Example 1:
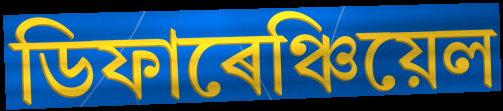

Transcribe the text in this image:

ডিফাৰেঞ্চিয়েল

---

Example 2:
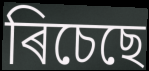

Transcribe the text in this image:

ৰিচেছে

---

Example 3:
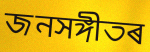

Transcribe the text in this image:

জনসঙ্গীতৰ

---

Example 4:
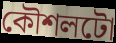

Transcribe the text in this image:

কৌশলটো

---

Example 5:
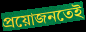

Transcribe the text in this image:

প্ৰয়োজনতেই